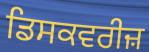
ਡਿਸਕਵਰੀਜ਼